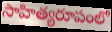
సాహిత్యరూపంలో